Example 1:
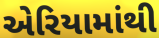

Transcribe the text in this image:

એરિયામાંથી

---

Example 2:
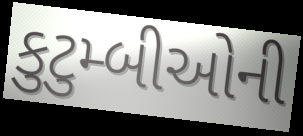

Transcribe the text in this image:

કુટુમ્બીઓની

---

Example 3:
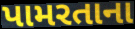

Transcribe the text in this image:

પામરતાના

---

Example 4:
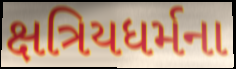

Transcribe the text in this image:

ક્ષત્રિયધર્મના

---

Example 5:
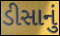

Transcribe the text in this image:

ડીસાનું